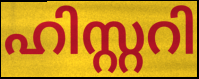
ഹിസ്റ്ററി